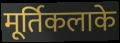
मूर्तिकलाके